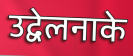
उद्वेलनाके